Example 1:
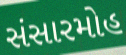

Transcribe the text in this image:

સંસારમોહ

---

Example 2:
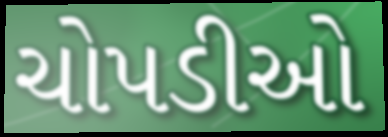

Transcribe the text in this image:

ચોપડીઓ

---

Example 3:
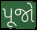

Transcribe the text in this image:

પૂજો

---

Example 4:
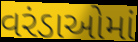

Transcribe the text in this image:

વરંડાઓમાં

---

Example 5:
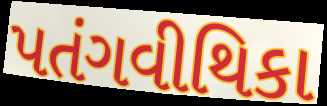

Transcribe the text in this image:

પતંગવીથિકા